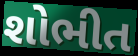
શોભીત